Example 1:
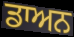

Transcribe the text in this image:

ਡਾਅਨ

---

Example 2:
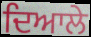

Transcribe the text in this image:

ਦਿਆਲੇ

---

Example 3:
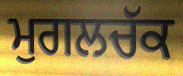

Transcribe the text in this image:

ਮੁਗਲਚੱਕ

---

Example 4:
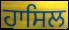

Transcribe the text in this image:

ਹਾਸਿਲ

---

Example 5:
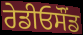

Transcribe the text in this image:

ਰੇਡੀਓਸੌਂਡ